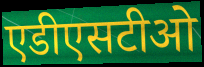
एडीएसटीओ